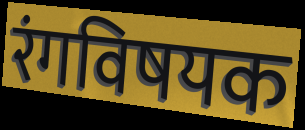
रंगविषयक